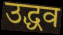
उद्धव